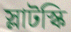
স্লাটস্কি